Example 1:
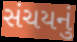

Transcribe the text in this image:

સંચયનું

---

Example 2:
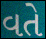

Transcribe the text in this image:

વતે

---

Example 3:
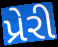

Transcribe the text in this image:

પ્રેરી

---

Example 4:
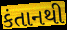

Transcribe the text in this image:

કંતાનથી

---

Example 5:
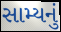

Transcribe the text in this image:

સામ્યનું